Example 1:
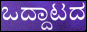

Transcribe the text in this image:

ಒದ್ದಾಟದ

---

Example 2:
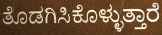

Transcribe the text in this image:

ತೊಡಗಿಸಿಕೊಳ್ಳುತ್ತಾರೆ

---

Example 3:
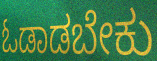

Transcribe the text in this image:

ಓಡಾಡಬೇಕು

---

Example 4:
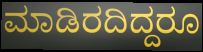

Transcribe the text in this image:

ಮಾಡಿರದಿದ್ದರೂ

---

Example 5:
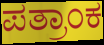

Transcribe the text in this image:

ಪತ್ರಾಂಕ